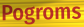
Pogroms